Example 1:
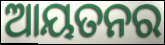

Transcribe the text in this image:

ଆୟତନର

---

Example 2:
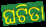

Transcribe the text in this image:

ଘଟିତା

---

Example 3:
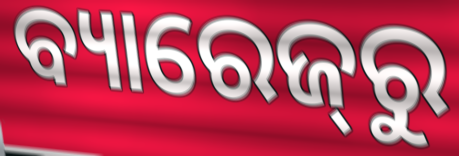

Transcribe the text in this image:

ବ୍ୟାରେଜ୍‌ରୁ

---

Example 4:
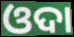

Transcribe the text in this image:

ଓଦା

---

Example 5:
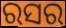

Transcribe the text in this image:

ରସର